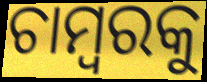
ଚାମ୍ବରକୁ